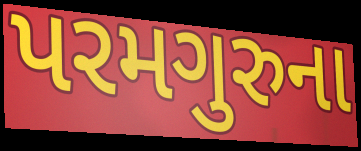
પરમગુરુના